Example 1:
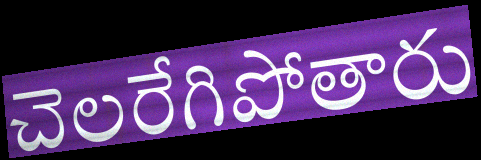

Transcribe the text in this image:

చెలరేగిపోతారు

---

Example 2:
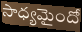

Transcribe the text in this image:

సాధ్యమైందో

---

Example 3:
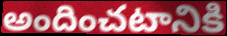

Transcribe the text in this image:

అందించటానికి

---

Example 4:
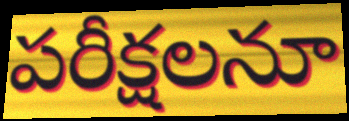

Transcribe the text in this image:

పరీక్షలనూ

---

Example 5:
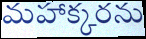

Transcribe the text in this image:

మహాక్కరను